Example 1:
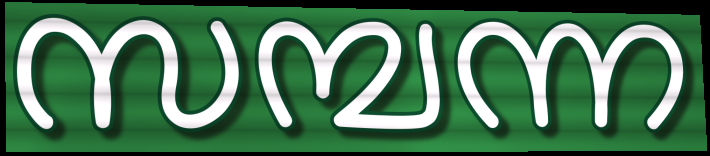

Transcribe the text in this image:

സമ്പന്ന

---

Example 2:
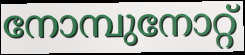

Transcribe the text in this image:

നോമ്പുനോറ്റ്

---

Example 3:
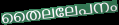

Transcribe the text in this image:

തൈലലേപനം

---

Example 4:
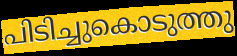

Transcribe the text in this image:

പിടിച്ചുകൊടുത്തു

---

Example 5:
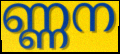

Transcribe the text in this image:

ണ്ണന